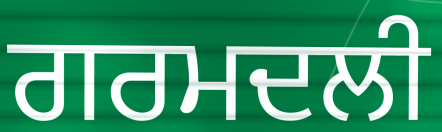
ਗਰਮਦਲੀ